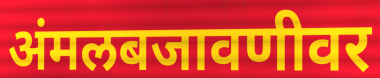
अंमलबजावणीवर